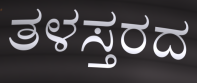
ತಳಸ್ತರದ